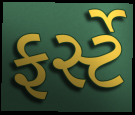
ફર્સ્ટે